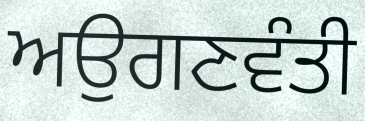
ਅਉਗਣਵੰਤੀ